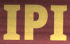
IPI